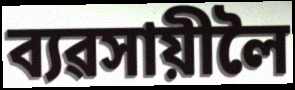
ব্যৱসায়ীলৈ